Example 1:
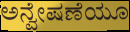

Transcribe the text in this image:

ಅನ್ವೇಷಣೆಯೂ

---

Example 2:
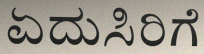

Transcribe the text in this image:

ಏದುಸಿರಿಗೆ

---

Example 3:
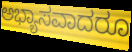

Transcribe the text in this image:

ಅಭ್ಯಾಸವಾದರೂ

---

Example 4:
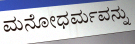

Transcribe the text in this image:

ಮನೋಧರ್ಮವನ್ನು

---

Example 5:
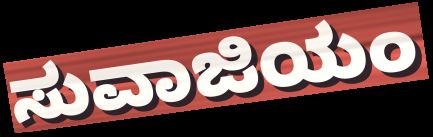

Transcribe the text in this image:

ಸುವಾಜಿಯಂ